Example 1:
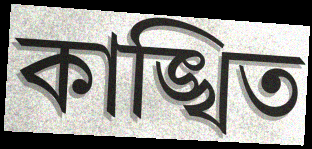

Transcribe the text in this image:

কাঙ্খিত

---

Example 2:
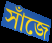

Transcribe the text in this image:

সাঁজে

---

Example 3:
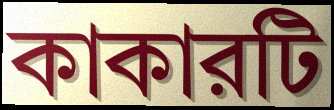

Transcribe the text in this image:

কাকারটি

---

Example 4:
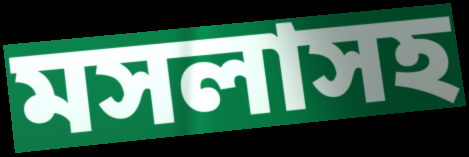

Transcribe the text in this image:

মসলাসহ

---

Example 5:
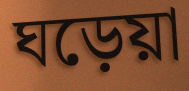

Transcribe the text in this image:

ঘড়েয়া